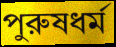
পুরুষধর্ম